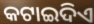
କଟାଇଦିଏ